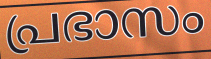
പ്രഭാസം